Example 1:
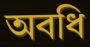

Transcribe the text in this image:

অবধি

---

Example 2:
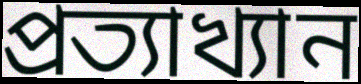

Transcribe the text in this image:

প্রত্যাখ্যান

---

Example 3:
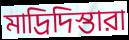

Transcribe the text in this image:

মাদ্রিদিস্তারা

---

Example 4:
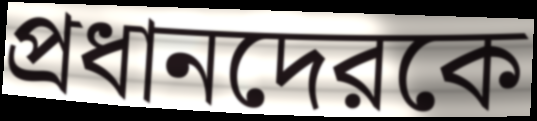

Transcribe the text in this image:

প্রধানদেরকে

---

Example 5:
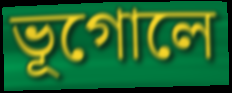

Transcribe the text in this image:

ভূগোলে